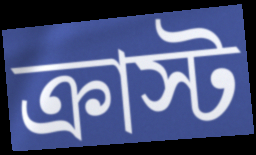
ক্রাস্ট